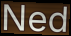
Ned